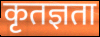
कृतज्ञता